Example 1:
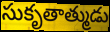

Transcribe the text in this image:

సుకృతాత్ముడు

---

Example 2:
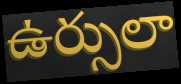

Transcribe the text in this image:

ఉర్సులా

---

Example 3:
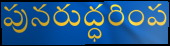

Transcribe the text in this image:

పునరుద్ధరింప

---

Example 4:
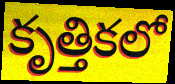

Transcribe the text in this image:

కృత్తికలో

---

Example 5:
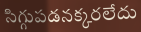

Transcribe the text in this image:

సిగ్గుపడనక్కరలేదు